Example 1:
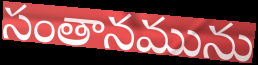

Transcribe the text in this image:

సంతానమును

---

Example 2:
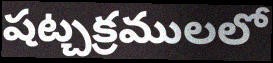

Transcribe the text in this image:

షట్చక్రములలో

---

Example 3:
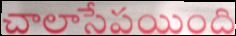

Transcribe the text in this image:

చాలాసేపయింది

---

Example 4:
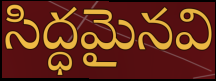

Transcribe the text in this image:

సిద్ధమైనవి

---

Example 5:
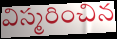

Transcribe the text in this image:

విస్మరించిన